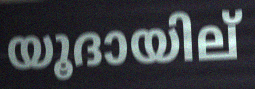
യൂദായില്